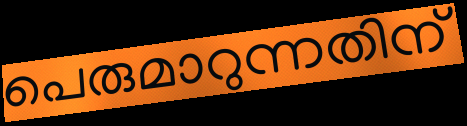
പെരുമാറുന്നതിന്